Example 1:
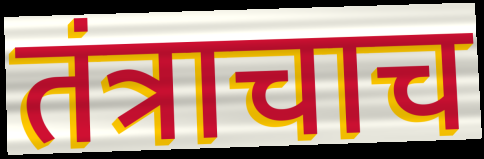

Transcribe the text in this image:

तंत्राचाच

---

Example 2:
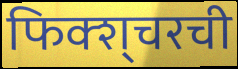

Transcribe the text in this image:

फिक्श्चरची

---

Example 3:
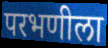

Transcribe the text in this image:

परभणीला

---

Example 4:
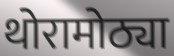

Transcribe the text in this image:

थोरामोठ्या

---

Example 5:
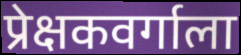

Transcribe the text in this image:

प्रेक्षकवर्गाला